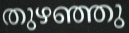
തുഴഞ്ഞു